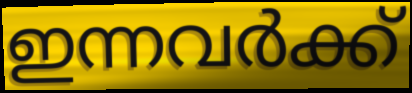
ഇന്നവർക്ക്